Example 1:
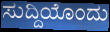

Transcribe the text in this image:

ಸುದ್ದಿಯೊಂದು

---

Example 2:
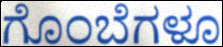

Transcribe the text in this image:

ಗೊಂಬೆಗಳೂ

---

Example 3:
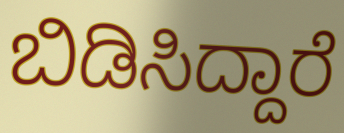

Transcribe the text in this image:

ಬಿಡಿಸಿದ್ದಾರೆ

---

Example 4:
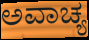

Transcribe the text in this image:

ಅವಾಚ್ಯ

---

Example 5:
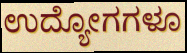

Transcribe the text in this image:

ಉದ್ಯೋಗಗಳೂ